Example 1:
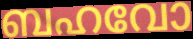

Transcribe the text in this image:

ബഹവോ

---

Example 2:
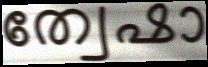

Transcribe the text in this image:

ത്വേഷാ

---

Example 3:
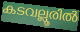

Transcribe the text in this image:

കടവല്ലൂരിൽ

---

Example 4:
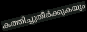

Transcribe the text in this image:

കത്തിച്ചുതീർക്കുകയും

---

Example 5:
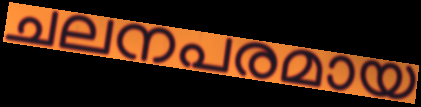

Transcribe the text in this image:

ചലനപരമായ